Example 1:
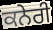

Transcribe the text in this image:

ਕਨੇਰੀ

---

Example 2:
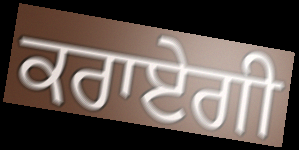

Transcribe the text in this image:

ਕਰਾਏਗੀ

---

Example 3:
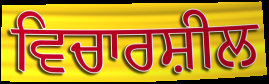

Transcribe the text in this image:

ਵਿਚਾਰਸ਼ੀਲ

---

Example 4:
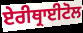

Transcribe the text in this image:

ਏਰੀਥ੍ਰਾਈਟੋਲ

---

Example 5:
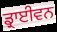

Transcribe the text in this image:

ਡ੍ਰਾਈਵਨ